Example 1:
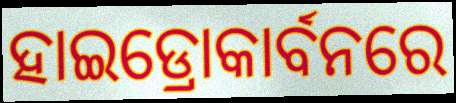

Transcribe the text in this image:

ହାଇଡ୍ରୋକାର୍ବନରେ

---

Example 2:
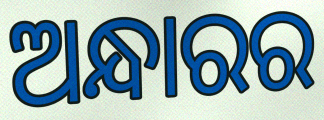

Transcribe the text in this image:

ଅନ୍ଧାରର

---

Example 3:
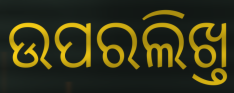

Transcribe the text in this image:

ଉପରଲିଖ୍ତ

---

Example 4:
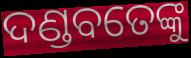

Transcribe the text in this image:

ଦଣ୍ଡବତେଙ୍କୁ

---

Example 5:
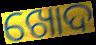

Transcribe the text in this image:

ଖୋଦ